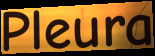
Pleura